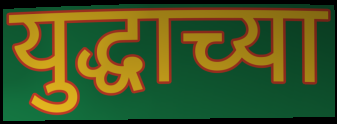
युद्धाच्या